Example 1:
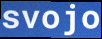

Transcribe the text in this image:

svojo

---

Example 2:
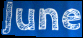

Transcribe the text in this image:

June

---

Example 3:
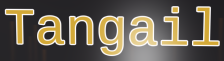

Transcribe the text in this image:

Tangail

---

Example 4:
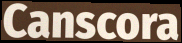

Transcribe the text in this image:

Canscora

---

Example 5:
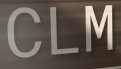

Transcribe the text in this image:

CLM